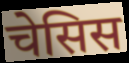
चेसिस